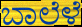
ಬಾಲೆಳೆ